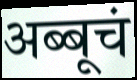
अब्बूचं